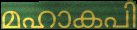
മഹാകപി